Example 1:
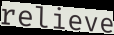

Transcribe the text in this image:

relieve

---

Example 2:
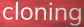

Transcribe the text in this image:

cloning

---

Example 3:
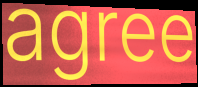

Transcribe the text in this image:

agree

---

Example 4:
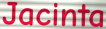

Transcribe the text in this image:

Jacinta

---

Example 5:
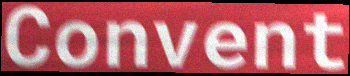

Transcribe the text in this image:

Convent